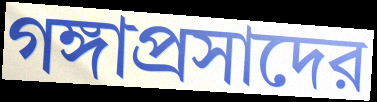
গঙ্গাপ্রসাদের